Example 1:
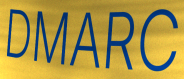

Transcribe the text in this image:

DMARC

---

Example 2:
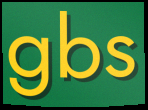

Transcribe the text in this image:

gbs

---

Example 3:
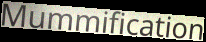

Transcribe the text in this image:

Mummification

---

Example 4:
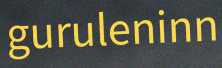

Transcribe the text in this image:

guruleninn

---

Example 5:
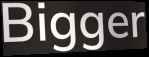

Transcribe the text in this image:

Bigger